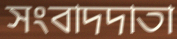
সংবাদদাতা